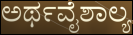
ಅರ್ಥವೈಶಾಲ್ಯ